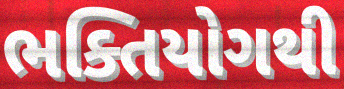
ભક્તિયોગથી